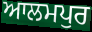
ਆਲਮਪੁਰ